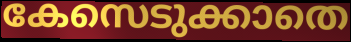
കേസെടുക്കാതെ